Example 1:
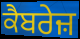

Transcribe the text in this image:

ਕੈਬਰੇਜ਼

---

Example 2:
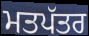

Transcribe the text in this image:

ਮਤਪੱਤਰ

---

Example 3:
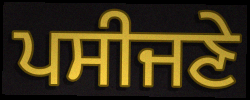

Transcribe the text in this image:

ਪਸੀਜਣੇ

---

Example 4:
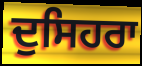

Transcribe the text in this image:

ਦੁਸਿਹਰਾ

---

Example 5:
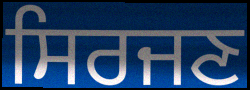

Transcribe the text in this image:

ਸਿਰਜਣ